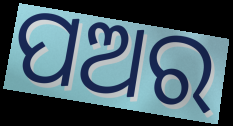
ପଅର